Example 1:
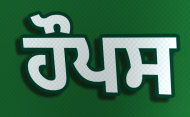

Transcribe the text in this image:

ਹੌਪਸ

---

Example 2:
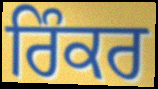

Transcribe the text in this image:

ਰਿੰਕਰ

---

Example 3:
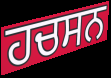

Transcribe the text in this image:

ਹਚਸਨ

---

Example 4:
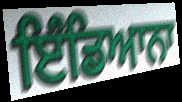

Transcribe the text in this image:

ਇੰਡਿਆਨਾ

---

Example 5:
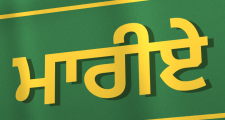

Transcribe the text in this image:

ਮਾਰੀਏ